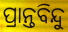
ପ୍ରାନ୍ତବିନ୍ଦୁ